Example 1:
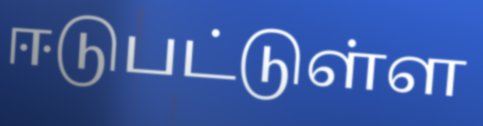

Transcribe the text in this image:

ஈடுபட்டுள்ள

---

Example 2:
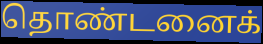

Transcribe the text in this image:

தொண்டனைக்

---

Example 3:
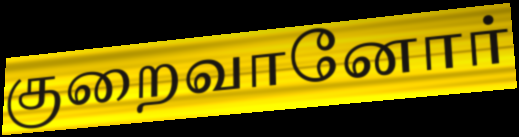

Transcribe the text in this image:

குறைவானோர்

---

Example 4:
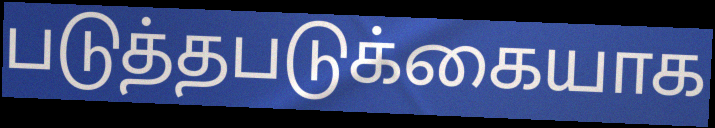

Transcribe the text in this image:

படுத்தபடுக்கையாக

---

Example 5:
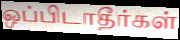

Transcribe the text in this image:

ஒப்பிடாதீர்கள்